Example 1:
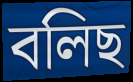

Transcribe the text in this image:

বলিছ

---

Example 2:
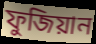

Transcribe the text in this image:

ফুজিয়ান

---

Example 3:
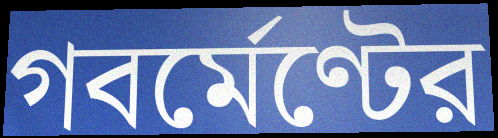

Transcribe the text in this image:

গবর্মেণ্টের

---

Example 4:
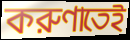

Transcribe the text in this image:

করুণাতেই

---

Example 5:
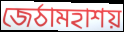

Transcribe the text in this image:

জেঠামহাশয়